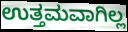
ಉತ್ತಮವಾಗಿಲ್ಲ